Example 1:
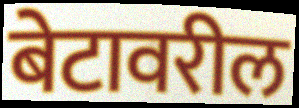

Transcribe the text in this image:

बेटावरील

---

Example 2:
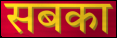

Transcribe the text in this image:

सबका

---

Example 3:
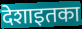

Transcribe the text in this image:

देशाइतका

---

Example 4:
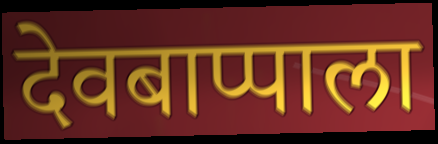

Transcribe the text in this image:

देवबाप्पाला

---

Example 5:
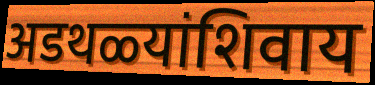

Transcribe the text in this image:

अडथळ्यांशिवाय